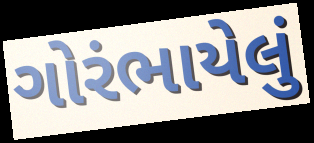
ગોરંભાયેલું